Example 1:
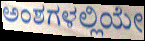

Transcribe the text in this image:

ಅಂಶಗಳಲ್ಲಿಯೇ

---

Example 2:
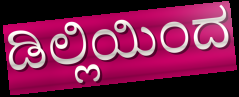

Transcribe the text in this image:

ಡಿಲ್ಲಿಯಿಂದ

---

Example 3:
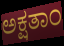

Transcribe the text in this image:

ಅಕ್ಷತಾಂ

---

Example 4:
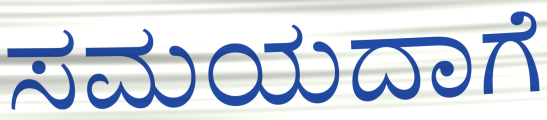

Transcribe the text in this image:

ಸಮಯದಾಗೆ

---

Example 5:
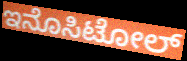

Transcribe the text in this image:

ಇನೊಸಿಟೋಲ್